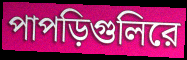
পাপড়িগুলিরে